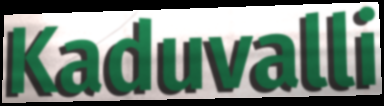
Kaduvalli